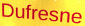
Dufresne